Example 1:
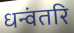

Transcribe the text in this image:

धन्वंतरि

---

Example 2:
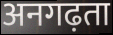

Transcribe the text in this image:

अनगढ़ता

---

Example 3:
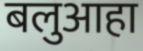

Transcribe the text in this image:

बलुआहा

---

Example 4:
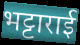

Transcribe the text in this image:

भट्टाराई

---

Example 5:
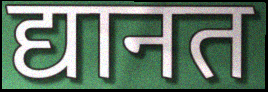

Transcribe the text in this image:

द्यानत